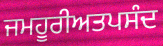
ਜਮਹੂਰੀਅਤਪਸੰਦ